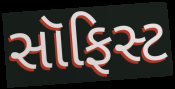
સૉફિસ્ટ